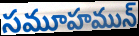
సమూహమున్